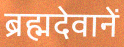
ब्रह्मदेवानें